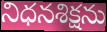
నిధనశిక్షను